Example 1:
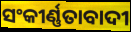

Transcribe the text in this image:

ସଂକୀର୍ଣ୍ଣତାବାଦୀ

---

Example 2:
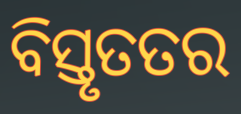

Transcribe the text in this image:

ବିସ୍ତୃତତର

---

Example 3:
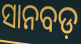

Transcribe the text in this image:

ସାନବଡ଼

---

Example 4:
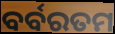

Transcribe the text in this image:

ବର୍ବରତମ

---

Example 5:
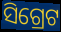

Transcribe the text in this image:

ସିଗ୍ରେଟ